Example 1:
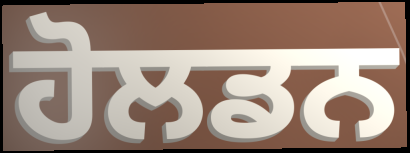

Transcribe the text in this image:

ਹੋਲਡਨ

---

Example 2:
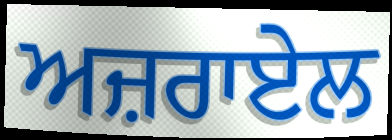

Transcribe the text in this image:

ਅਜ਼ਰਾਏਲ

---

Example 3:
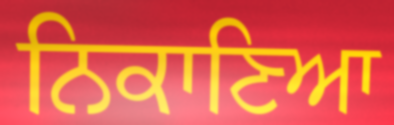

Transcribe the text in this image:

ਨਿਕਾਣਿਆ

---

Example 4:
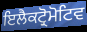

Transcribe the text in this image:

ਇਲੈਕਟ੍ਰੋਮੋਟਿਵ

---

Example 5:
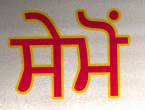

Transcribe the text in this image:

ਸੇਮੋਂ